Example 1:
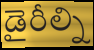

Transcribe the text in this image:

డైరీల్ని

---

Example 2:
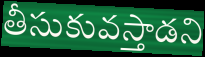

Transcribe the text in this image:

తీసుకువస్తాడని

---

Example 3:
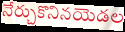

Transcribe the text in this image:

నేర్చుకొనినయెడల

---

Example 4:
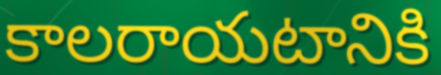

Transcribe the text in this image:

కాలరాయటానికి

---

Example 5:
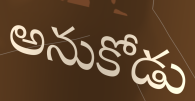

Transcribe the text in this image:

అనుకోడు